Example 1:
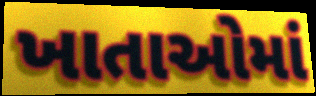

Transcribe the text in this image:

ખાતાઓમાં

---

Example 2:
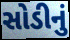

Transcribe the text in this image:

સોડીનું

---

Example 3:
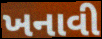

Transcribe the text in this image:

ખનાવી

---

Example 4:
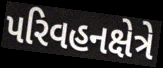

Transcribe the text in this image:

પરિવહનક્ષેત્રે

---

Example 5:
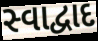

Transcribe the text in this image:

સ્વાદ્વાદ